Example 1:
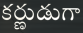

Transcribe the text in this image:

కర్ణుడుగా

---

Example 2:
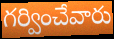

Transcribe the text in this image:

గర్వించేవారు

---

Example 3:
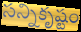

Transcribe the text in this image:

సన్నికృష్టం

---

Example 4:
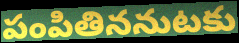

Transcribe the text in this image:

పంపితిననుటకు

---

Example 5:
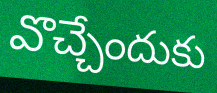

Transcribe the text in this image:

వొచ్చేందుకు